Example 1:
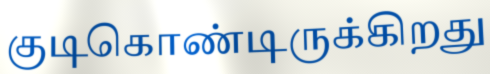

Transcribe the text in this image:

குடிகொண்டிருக்கிறது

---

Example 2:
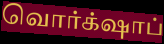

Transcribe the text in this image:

வொர்க்‌ஷாப்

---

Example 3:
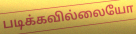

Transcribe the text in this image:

படிக்கவில்லையோ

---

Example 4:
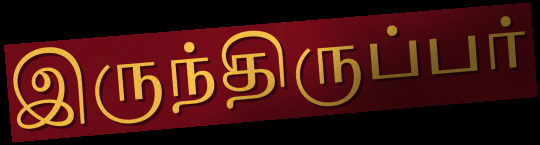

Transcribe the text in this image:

இருந்திருப்பர்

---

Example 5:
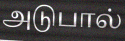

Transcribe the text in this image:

அடுபால்